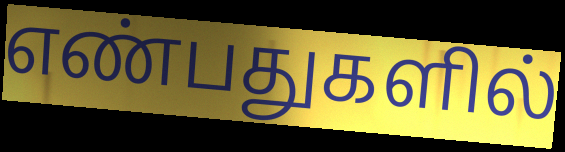
எண்பதுகளில்